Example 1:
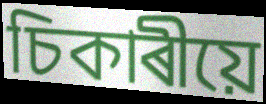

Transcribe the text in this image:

চিকাৰীয়ে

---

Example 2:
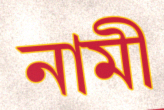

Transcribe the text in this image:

নামী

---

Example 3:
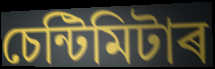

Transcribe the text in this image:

চেন্টিমিটাৰ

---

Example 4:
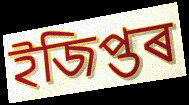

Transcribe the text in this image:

ইজিপ্তৰ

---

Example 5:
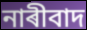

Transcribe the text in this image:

নাৰীবাদ